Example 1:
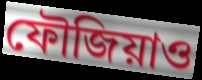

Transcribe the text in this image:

ফৌজিয়াও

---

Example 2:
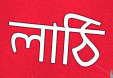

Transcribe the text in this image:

লাঠি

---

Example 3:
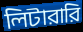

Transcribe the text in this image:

লিটারারি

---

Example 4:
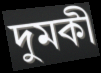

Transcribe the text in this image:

দুমকী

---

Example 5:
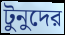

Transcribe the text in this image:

টুনুদের